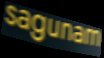
sagunam